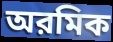
অরমিক